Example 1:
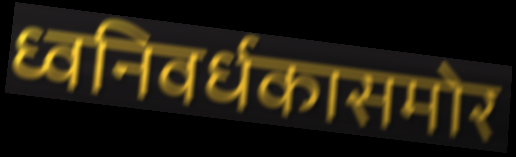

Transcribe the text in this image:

ध्वनिवर्धकासमोर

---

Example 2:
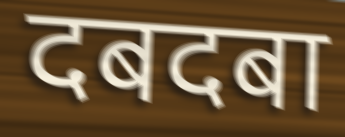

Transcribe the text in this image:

दबदबा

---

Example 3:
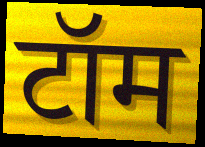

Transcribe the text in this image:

टॉम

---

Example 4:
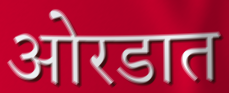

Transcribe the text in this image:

ओरडात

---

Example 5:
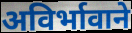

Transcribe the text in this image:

अविर्भावाने